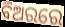
ବିଅରରେ